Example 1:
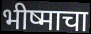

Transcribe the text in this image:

भीष्माचा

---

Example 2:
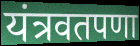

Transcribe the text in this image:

यंत्रवतपणा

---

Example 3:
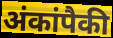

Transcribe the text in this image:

अंकांपैकी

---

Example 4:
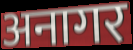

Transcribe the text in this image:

अनागर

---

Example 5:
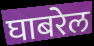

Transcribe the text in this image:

घाबरेल